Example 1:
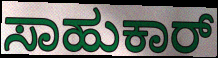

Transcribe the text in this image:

ಸಾಹುಕಾರ್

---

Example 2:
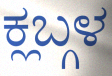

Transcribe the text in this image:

ಕ್ಲಬ್ಗಳ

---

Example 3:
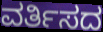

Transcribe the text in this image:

ವರ್ತಿಸದ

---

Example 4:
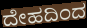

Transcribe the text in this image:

ದೇಹದಿಂದ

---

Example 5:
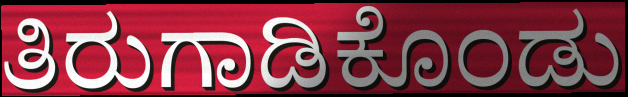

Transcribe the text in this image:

ತಿರುಗಾಡಿಕೊಂಡು